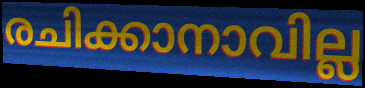
രചിക്കാനാവില്ല